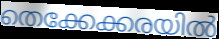
തെക്കേക്കരയിൽ